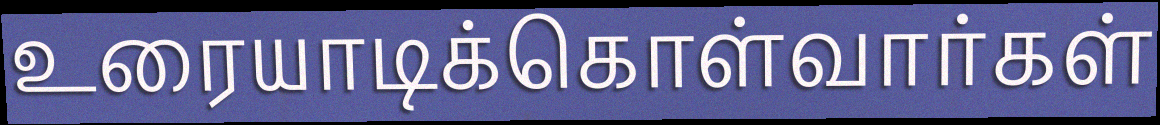
உரையாடிக்கொள்வார்கள்